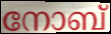
നോബ്